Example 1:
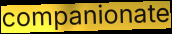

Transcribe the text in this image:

companionate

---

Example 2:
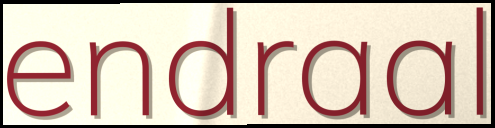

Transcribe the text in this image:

endraal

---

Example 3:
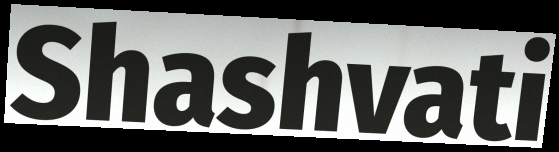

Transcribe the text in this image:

Shashvati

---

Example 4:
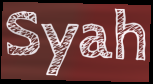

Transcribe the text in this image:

Syah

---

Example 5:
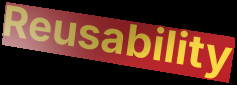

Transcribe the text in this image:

Reusability